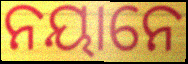
ନୟାନେ